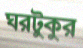
ঘরটুকুর